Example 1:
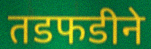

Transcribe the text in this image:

तडफडीने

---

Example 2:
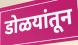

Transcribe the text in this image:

डोळयांतून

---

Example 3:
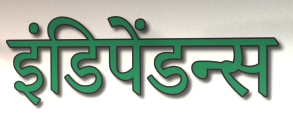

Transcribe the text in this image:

इंडिपेंडन्स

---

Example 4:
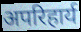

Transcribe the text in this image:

अपरिहार्य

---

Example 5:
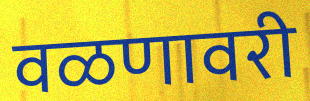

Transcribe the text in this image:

वळणावरी